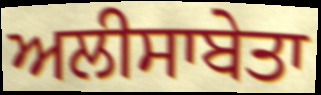
ਅਲੀਸਾਬੇਤਾ